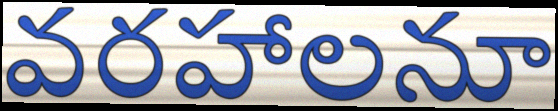
వరహాలనూ